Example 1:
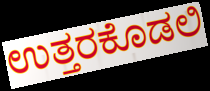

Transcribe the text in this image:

ಉತ್ತರಕೊಡಲಿ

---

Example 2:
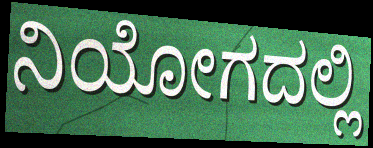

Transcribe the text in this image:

ನಿಯೋಗದಲ್ಲಿ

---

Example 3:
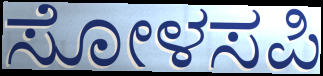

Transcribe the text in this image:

ಸೋಳಸಪಿ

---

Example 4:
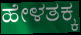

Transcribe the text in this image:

ಹೇಳತಕ್ಕ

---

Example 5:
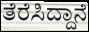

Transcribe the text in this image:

ತೆರೆಸಿದ್ದಾನೆ